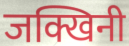
जक्खिनी